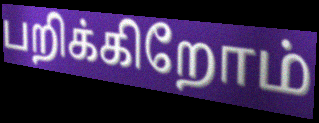
பறிக்கிறோம்